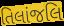
તિલાંજલિ